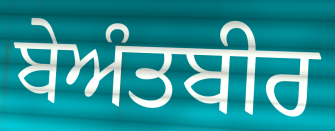
ਬੇਅੰਤਬੀਰ